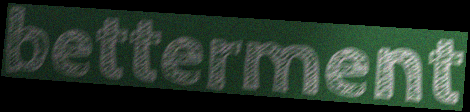
betterment